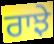
ਰਾਝੇ